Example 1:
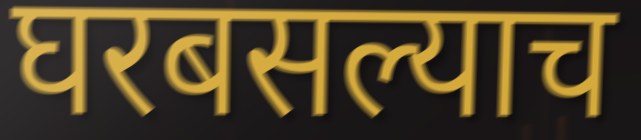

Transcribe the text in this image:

घरबसल्याच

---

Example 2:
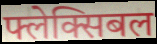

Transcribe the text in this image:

फ्लेक्सिबल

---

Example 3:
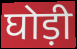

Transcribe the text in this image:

घोड़ी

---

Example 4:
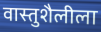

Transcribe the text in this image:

वास्तुशैलीला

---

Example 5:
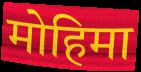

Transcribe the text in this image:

मोहिमा